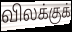
விலக்குக்